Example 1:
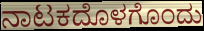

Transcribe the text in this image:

ನಾಟಕದೊಳಗೊಂದು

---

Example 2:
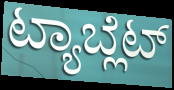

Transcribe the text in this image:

ಟ್ಯಾಬ್ಲೆಟ್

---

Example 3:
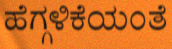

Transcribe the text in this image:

ಹೆಗ್ಗಳಿಕೆಯಂತೆ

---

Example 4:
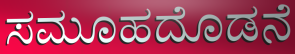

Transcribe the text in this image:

ಸಮೂಹದೊಡನೆ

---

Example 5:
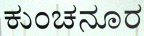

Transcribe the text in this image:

ಕುಂಚನೂರ